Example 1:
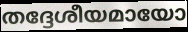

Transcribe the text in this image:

തദ്ദേശീയമായോ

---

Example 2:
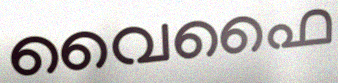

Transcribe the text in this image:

വൈഫൈ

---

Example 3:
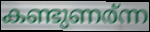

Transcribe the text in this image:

കണ്ടുണര്ന്ന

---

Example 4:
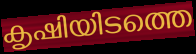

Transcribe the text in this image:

കൃഷിയിടത്തെ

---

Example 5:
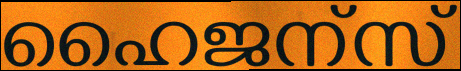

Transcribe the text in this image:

ഹൈജന്സ്